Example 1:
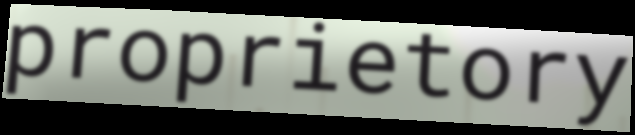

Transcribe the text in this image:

proprietory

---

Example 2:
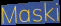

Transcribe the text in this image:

Maski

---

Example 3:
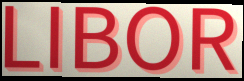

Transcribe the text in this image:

LIBOR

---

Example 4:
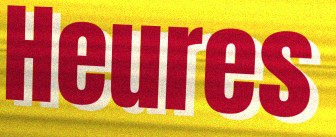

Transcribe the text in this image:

Heures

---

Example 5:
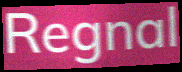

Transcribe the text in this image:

Regnal